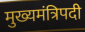
मुख्यमंत्रिपदी